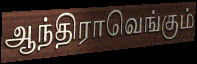
ஆந்திராவெங்கும்